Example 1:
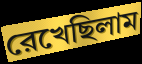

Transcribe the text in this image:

রেখেছিলাম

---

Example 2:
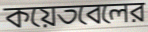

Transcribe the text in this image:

কয়েতবেলের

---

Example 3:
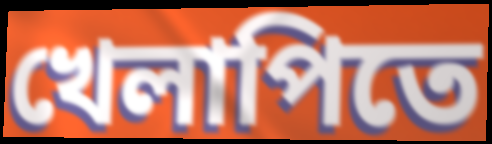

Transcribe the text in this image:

খেলাপিতে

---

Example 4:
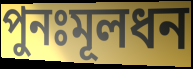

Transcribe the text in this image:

পুনঃমূলধন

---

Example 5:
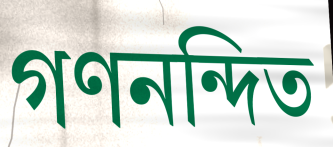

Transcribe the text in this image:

গণনন্দিত